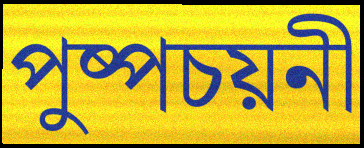
পুষ্পচয়নী